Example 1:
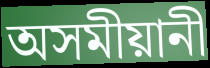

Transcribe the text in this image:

অসমীয়ানী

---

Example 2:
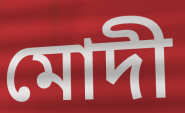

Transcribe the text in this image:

মোদী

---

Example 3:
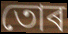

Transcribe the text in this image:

তোৰ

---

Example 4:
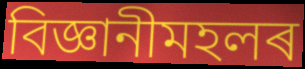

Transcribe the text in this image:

বিজ্ঞানীমহলৰ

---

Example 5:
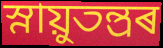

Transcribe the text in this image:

স্নায়ুতন্ত্ৰৰ